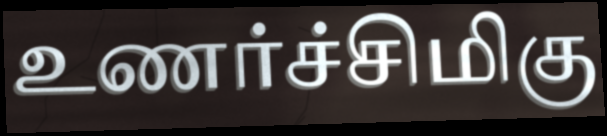
உணர்ச்சிமிகு